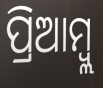
ପ୍ରିଆମ୍ବ୍ଲ